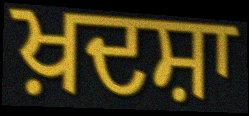
ਖ਼ਦਸ਼ਾ